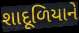
શાદૂળિયાને